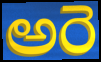
అరె